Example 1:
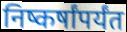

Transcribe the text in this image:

निष्कर्षांपर्यंत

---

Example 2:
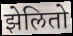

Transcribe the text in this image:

झेलितो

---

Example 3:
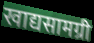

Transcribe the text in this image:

खाद्यसामग्री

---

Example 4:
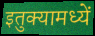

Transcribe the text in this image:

इतुक्यामध्यें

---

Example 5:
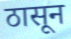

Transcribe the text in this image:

ठासून